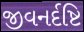
જીવનર્દષ્ટિ